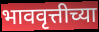
भाववृत्तीच्या